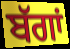
ਬੱਗਾਂ